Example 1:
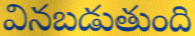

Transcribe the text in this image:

వినబడుతుంది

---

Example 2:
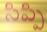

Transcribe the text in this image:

సిప్పి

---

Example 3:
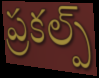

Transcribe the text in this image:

ప్రకల్ప్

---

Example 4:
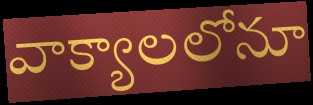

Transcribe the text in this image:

వాక్యాలలోనూ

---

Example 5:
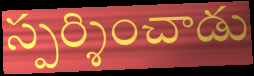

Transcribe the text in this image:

స్పర్శించాడు